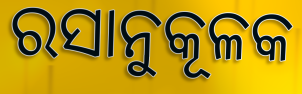
ରସାନୁକୂଳକ